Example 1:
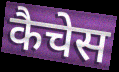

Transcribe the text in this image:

कैचेस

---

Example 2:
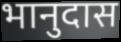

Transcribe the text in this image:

भानुदास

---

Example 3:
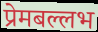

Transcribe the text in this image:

प्रेमबल्लभ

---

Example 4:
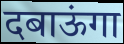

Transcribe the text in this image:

दबाऊंगा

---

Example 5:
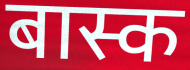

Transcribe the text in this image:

बास्क